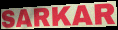
SARKAR